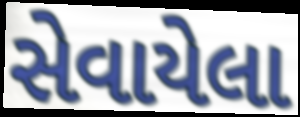
સેવાયેલા